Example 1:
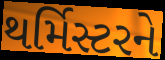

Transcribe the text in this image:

થર્મિસ્ટરને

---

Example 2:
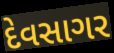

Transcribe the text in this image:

દેવસાગર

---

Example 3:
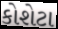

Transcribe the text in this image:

કોશેટા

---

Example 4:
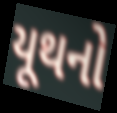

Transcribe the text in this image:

યૂથનો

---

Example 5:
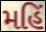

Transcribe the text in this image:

મહિં